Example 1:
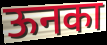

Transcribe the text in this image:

ऊनका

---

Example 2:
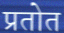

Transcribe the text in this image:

प्रतोत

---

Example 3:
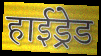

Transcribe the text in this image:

हाईड्रेड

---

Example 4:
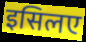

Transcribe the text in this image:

इसिलए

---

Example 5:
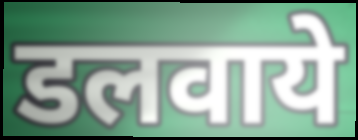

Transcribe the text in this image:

डलवाये